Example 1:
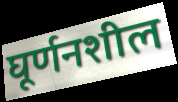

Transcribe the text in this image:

घूर्णनशील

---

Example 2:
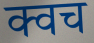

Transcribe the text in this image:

क्वच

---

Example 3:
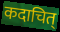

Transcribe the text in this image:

कदाचित्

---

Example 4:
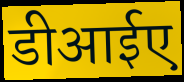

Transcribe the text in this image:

डीआईए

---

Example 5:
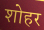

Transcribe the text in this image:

शोहर